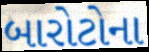
બારોટોના